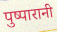
पुष्पारानी